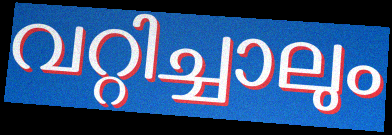
വറ്റിച്ചാലും